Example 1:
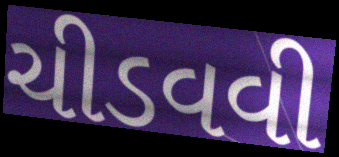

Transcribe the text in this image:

ચીડવવી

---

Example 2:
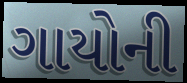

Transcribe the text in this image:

ગાયોની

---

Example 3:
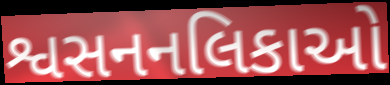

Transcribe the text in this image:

શ્વસનનલિકાઓ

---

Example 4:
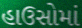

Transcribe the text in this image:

હાઉસોમાં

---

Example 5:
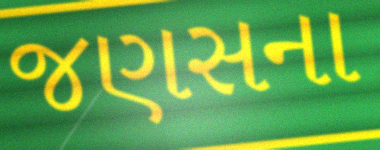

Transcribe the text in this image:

જણસના